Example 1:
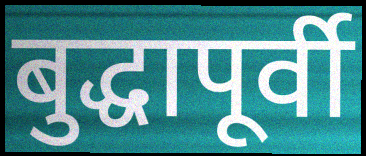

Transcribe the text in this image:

बुद्धापूर्वी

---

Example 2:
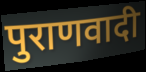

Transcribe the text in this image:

पुराणवादी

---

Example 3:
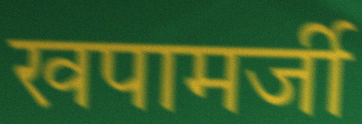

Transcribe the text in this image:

खपामर्जी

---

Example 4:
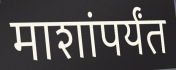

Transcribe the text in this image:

माशांपर्यंत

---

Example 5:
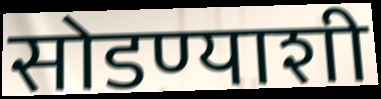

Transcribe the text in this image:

सोडण्याशी